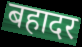
बहादर